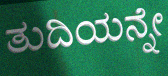
ತುದಿಯನ್ನೇ